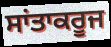
ਸਾਂਤਾਕਰੂਜ